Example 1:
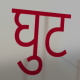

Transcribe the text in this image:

घुट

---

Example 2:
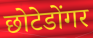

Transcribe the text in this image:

छोटेडोंगर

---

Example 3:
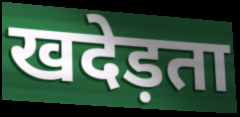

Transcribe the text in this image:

खदेड़ता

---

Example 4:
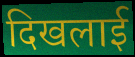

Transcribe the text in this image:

दिखलाई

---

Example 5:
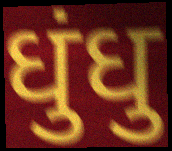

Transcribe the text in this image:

धुंधु